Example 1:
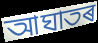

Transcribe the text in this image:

আঘাতৰ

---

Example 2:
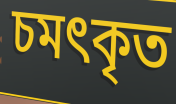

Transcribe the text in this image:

চমৎকৃত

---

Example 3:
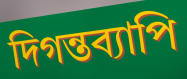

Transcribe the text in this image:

দিগন্তব্যাপি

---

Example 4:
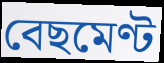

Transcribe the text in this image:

বেছমেণ্ট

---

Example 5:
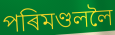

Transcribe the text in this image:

পৰিমণ্ডললৈ